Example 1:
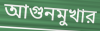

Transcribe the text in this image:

আগুনমুখার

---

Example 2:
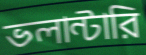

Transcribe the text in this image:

ভলান্টারি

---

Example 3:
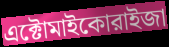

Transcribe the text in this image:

এক্টোমাইকোরাইজা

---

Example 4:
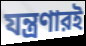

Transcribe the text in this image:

যন্ত্রণারই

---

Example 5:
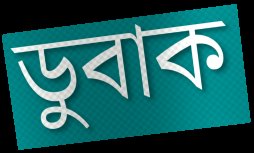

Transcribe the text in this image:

ডুবাক